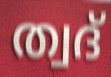
ത്വദ്